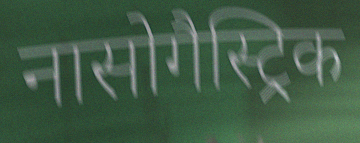
नासोगैस्ट्रिक